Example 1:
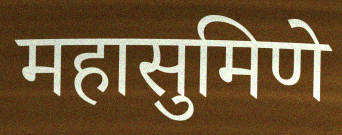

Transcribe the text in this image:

महासुमिणे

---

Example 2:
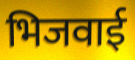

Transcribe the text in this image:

भिजवाई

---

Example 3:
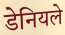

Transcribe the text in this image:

डेनियले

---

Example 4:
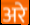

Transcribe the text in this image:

अरे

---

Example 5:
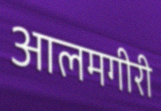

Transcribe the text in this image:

आलमगीरी